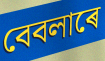
বেবলাৰে